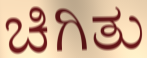
ಚಿಗಿತು